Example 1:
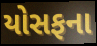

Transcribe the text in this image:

યોસફના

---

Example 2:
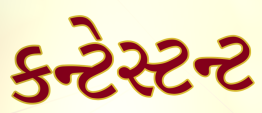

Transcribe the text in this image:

કન્ટેસ્ટન્ટ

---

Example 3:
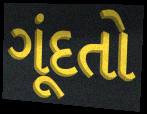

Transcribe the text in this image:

ગૂંદતો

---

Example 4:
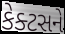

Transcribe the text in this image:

કેક્ટસને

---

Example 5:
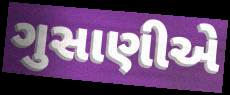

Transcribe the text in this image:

ગુસાણીએ